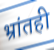
भ्रांतही